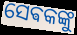
ସେଵକଙ୍କୁ